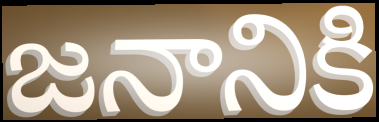
జనానికి